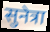
सुनेत्रा